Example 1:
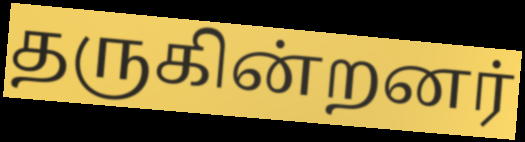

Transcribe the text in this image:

தருகின்றனர்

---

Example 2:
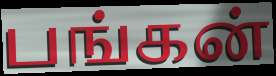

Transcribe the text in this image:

பங்கன்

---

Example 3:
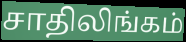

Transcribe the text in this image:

சாதிலிங்கம்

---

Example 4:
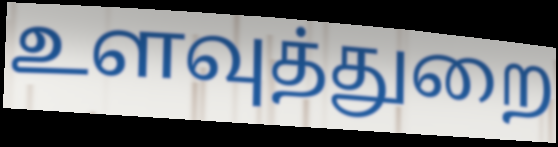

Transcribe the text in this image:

உளவுத்துறை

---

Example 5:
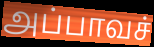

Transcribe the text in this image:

அப்பாவச்